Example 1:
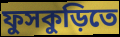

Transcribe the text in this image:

ফুসকুড়িতে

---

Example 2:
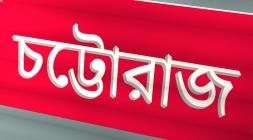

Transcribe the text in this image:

চট্টোরাজ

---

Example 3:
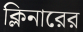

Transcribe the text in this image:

ক্লিনারের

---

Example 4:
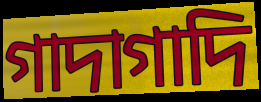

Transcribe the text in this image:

গাদাগাদি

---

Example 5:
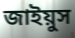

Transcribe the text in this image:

জাইয়ুস